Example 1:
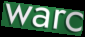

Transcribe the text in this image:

warc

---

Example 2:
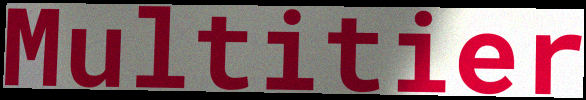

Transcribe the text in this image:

Multitier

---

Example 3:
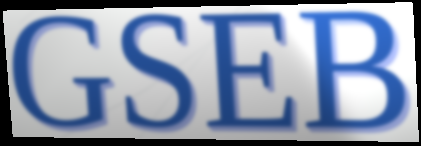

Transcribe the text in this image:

GSEB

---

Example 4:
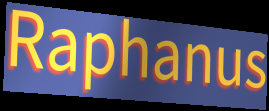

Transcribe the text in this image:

Raphanus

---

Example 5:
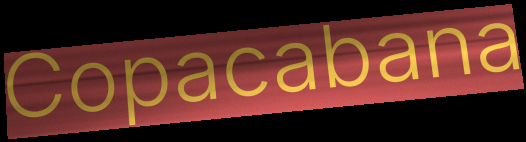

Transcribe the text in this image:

Copacabana